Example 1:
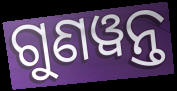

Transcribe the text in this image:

ଗୁଣୱନ୍ତ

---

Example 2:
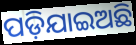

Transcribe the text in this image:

ପଡ଼ିଯାଇଅଛି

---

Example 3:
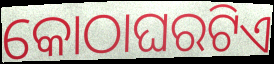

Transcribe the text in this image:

କୋଠାଘରଟିଏ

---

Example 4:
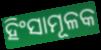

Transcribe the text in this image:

ହିଂସାମୂଳକ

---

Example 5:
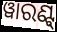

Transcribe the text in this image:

ୱାରଣ୍ଟ୍